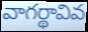
వాగర్థావివ